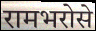
रामभरोसे